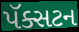
પૅક્સટન